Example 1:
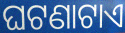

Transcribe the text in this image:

ଘଟଣାଟାଏ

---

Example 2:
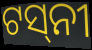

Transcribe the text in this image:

ଟସ୍‌ନୀ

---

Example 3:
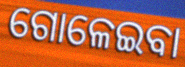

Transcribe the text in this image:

ଗୋଳେଇବା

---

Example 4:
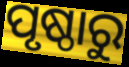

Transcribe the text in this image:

ପୃଷ୍ଠାରୁ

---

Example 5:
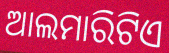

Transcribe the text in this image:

ଆଲମାରିଟିଏ